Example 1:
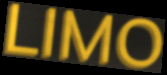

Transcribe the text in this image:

LIMO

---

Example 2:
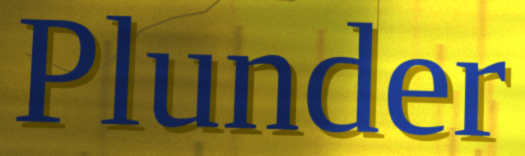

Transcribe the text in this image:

Plunder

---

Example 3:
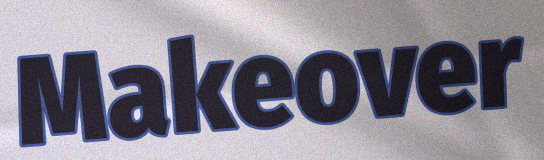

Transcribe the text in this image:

Makeover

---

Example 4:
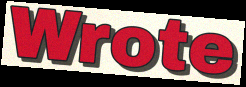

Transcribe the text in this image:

Wrote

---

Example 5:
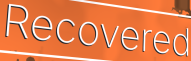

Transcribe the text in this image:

Recovered